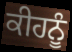
ਕੀਹਨੂੰ